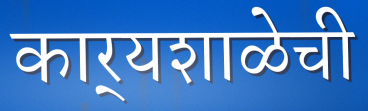
कार्यशाळेची